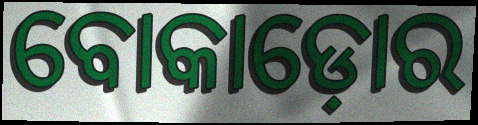
ବୋକାଡ଼ୋର